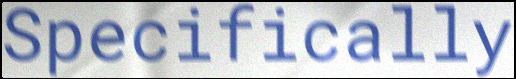
Specifically